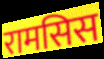
रामसिस